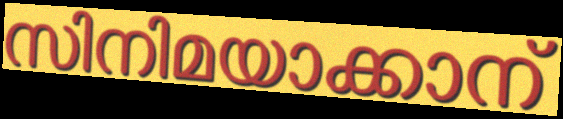
സിനിമയാക്കാന്